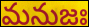
మనుజః